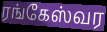
ரங்கேஸ்வர